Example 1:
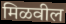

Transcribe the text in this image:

मिळवील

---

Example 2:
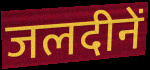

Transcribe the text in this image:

जलदीनें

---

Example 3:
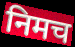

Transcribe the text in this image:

निमच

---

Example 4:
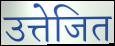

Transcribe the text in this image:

उत्तेजित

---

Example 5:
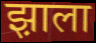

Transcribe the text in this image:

झ़ाला